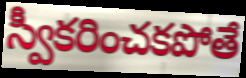
స్వీకరించకపోతే